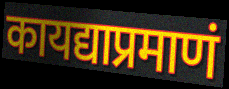
कायद्याप्रमाणं